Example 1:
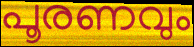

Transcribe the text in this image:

പൂരണവും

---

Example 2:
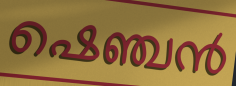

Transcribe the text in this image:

ഷെഞ്ചൻ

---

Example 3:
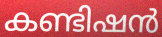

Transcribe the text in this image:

കണ്ടിഷൻ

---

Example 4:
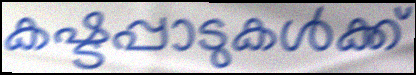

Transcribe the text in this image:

കഷ്ടപ്പാടുകൾക്ക്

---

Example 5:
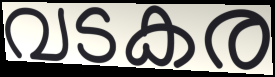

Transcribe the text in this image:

വടകര